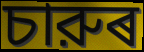
চাৰুৰ